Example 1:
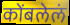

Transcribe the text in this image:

कोंबलेलं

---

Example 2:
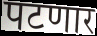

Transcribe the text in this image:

पटणार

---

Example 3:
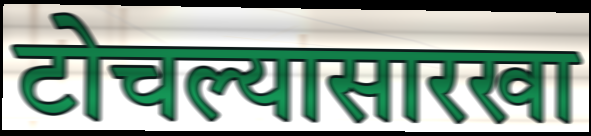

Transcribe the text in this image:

टोचल्यासारखा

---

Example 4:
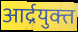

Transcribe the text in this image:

आर्द्रयुक्त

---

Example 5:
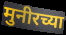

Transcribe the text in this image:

मुनीरच्या